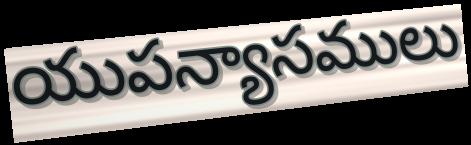
యుపన్యాసములు